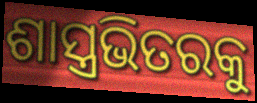
ଶାସ୍ତ୍ରଭିତରକୁ